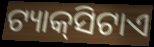
ଟ୍ୟାକ୍‌ସିଟାଏ